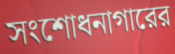
সংশোধনাগারের